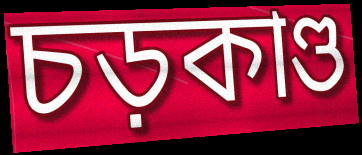
চড়কাণ্ড